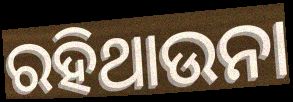
ରହିଥାଉନା